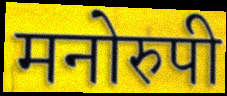
मनोरुपी